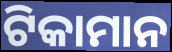
ଟିକାମାନ